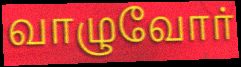
வாழுவோர்